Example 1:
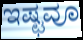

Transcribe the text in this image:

ಇಷ್ಟವೂ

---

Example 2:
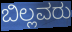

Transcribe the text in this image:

ಬಿಲ್ಲವರು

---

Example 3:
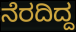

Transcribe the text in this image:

ನೆರದಿದ್ದ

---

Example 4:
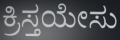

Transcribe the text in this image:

ಕ್ರಿಸ್ತಯೇಸು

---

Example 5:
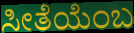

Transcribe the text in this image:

ಸೀತೆಯೆಂಬ